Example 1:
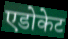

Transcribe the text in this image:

एडोकेट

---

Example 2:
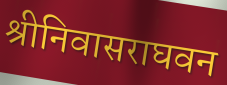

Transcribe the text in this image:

श्रीनिवासराघवन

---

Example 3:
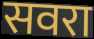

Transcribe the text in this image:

सवरा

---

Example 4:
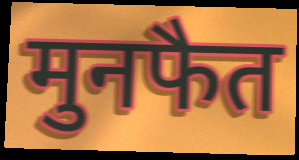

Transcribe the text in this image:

मुनफैत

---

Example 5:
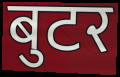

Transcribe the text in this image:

बुटर